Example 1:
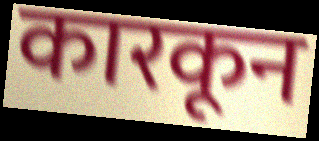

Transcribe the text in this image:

कारकून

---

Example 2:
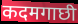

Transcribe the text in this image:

कदमगाछी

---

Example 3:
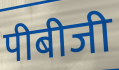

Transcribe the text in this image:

पीबीजी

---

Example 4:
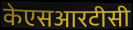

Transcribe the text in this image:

केएसआरटीसी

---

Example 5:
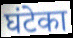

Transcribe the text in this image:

घंटेका